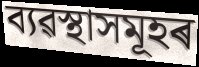
ব্যৱস্থাসমূহৰ